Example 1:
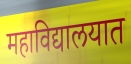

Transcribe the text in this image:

महाविद्यालयात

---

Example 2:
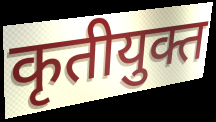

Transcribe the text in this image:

कृतीयुक्त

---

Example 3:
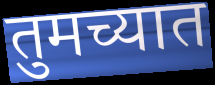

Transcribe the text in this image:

तुमच्यात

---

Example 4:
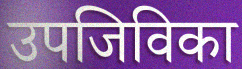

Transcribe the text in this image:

उपजिविका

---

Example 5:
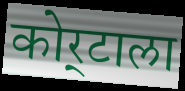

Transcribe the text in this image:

कोर्टाला